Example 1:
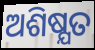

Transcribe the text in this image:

ଅଶିଷ୍ଯତ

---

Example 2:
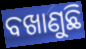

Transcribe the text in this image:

ବଖାଣୁଛି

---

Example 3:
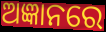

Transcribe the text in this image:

ଅଜ୍ଞାନରେ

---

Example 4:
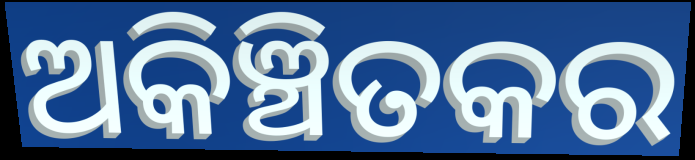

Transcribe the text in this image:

ଅକିଞ୍ଚିତକର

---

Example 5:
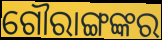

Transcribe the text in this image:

ଗୌରାଙ୍ଗଙ୍କର